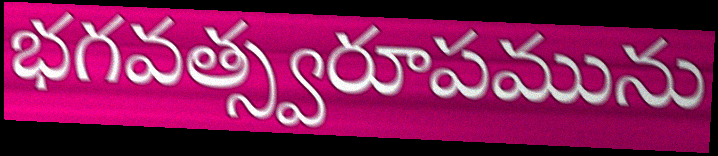
భగవత్స్వరూపమును